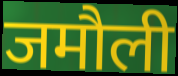
जमौली